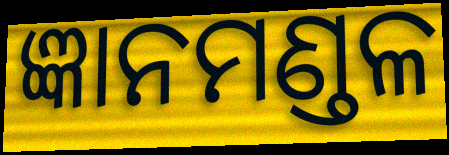
ଜ୍ଞାନମଣ୍ଡଳ